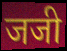
जजी